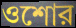
ওশোর